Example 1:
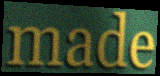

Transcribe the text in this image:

made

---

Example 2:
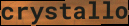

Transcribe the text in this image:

crystallo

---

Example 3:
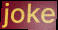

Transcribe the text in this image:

joke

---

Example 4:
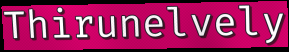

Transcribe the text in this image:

Thirunelvely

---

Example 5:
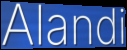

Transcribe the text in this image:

Alandi